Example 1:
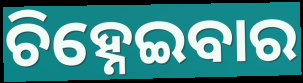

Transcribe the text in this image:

ଚିହ୍ନେଇବାର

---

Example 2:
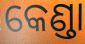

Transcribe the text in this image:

କେଣ୍ଡା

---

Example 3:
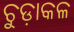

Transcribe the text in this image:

ଚୁଡ଼ାକଳ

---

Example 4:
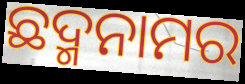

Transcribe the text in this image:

ଛଦ୍ମନାମର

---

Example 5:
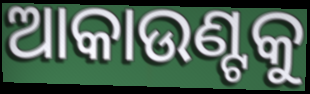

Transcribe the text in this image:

ଆକାଉଣ୍ଟକୁ